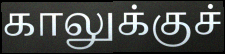
காலுக்குச்